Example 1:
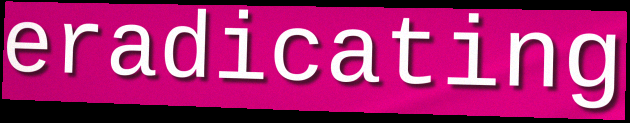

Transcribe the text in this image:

eradicating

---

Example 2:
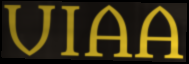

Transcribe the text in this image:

UIAA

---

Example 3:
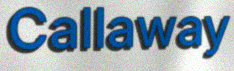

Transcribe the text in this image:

Callaway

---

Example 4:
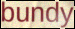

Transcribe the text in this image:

bundy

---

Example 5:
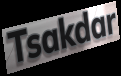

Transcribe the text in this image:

Tsakdar